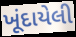
ખૂંદાયેલી